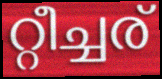
റ്റീച്ചര്